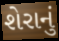
શેરાનું